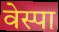
वेस्पा